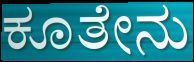
ಕೂತೇನು